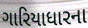
ગારિયાધારના